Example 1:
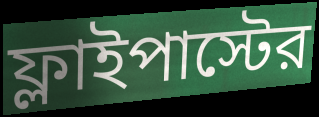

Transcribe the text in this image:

ফ্লাইপাস্টের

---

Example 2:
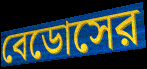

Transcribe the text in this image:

বেডোসের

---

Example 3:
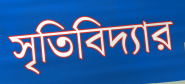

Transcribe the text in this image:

সৃতিবিদ্যার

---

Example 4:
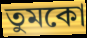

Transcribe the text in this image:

তুমকো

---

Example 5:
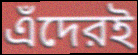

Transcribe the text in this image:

এঁদেরই